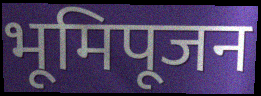
भूमिपूजन